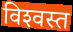
विश्‍वस्त